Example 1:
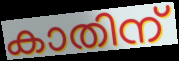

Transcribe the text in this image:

കാതിന്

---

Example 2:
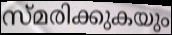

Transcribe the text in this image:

സ്മരിക്കുകയും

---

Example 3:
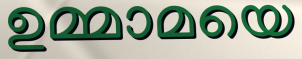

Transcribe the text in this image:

ഉമ്മാമയെ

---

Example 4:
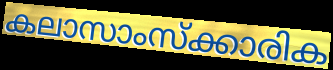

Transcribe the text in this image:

കലാസാംസ്ക്കാരിക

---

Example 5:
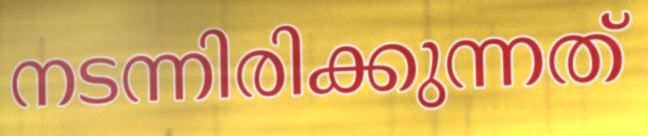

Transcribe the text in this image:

നടന്നിരിക്കുന്നത്